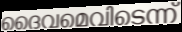
ദൈവമെവിടെന്ന്